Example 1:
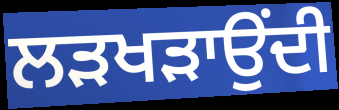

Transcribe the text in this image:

ਲੜਖੜਾਉਂਦੀ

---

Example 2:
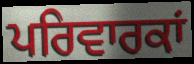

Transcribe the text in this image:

ਪਰਿਵਾਰਕਾਂ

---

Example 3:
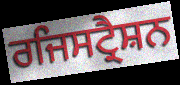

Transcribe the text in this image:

ਰਜਿਸਟ੍ਰੈਸ਼ਨ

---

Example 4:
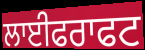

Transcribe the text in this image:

ਲਾਈਫਰਾਫਟ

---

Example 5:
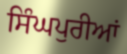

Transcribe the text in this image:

ਸਿੰਘਪੁਰੀਆਂ